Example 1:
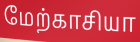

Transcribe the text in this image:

மேற்காசியா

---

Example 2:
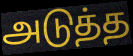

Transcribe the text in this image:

அடுத்த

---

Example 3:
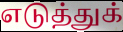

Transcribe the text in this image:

எடுத்துக்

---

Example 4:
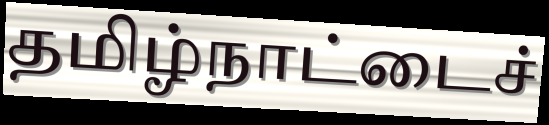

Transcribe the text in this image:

தமிழ்நாட்டைச்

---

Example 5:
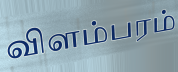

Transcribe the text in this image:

விளம்பரம்